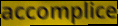
accomplice